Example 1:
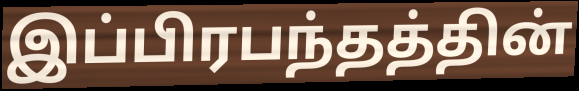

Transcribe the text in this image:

இப்பிரபந்தத்தின்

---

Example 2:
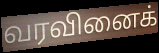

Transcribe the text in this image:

வரவினைக்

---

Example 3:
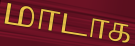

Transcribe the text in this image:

மாடாக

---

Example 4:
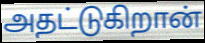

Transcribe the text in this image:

அதட்டுகிறான்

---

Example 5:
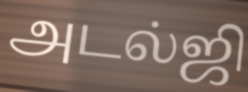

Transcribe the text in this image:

அடல்ஜி